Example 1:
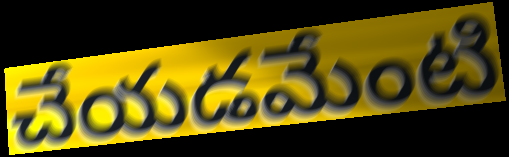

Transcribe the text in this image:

చేయడమేంటి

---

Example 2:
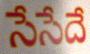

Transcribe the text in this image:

సేసేదే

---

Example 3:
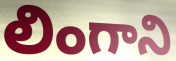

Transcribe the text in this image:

లింగాని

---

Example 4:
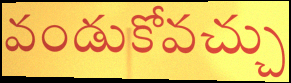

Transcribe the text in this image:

వండుకోవచ్చు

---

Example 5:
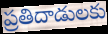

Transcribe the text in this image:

ప్రతిదాడులకు